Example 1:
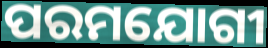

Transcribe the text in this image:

ପରମଯୋଗୀ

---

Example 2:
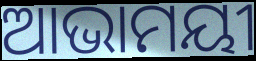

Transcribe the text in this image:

ଆଭାମୟୀ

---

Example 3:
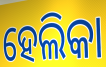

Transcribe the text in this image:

ହେଲିକା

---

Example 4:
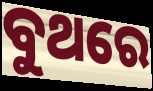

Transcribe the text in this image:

ବୁଥରେ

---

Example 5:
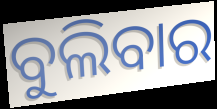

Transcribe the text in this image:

ବୁଲିବାର